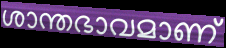
ശാന്തഭാവമാണ്